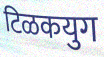
टिळकयुग